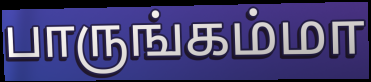
பாருங்கம்மா